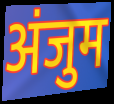
अंजुम